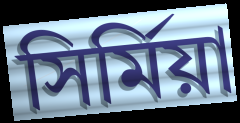
সির্মিয়া